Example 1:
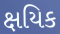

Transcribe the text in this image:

ક્ષયિક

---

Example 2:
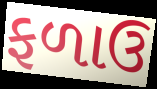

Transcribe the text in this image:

ફળાઉ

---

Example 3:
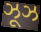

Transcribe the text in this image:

ઝૂઝ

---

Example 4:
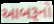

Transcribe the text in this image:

આબરૂનો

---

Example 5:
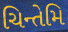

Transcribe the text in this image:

ચિન્તેમિ